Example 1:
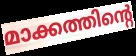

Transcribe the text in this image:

മാക്കത്തിന്റെ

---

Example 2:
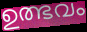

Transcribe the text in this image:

ഉത്ഭവം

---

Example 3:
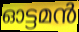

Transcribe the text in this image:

ഓട്ടമൻ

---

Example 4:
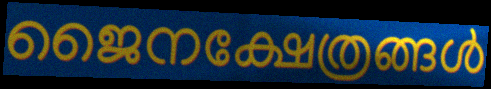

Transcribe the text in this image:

ജൈനക്ഷേത്രങ്ങൾ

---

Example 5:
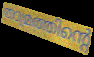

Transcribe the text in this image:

താമ്രത്തിന്റെ